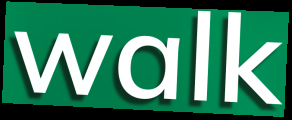
walk